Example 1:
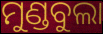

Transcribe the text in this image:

ମୁଣ୍ଡବୁଲା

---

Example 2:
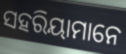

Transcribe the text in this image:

ସହରିୟାମାନେ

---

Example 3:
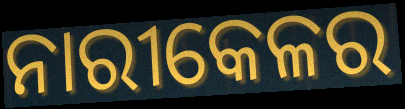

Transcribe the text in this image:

ନାରୀକେଳର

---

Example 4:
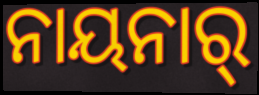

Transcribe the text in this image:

ନାୟନାର୍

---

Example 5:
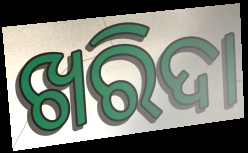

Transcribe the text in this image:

ଖରିଦା